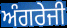
ਅੰਗਰੇਜੀ